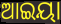
ଆଇୟା